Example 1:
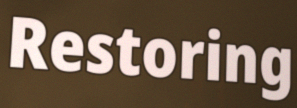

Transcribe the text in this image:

Restoring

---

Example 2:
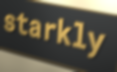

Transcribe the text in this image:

starkly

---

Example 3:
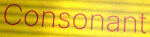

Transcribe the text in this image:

Consonant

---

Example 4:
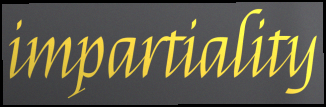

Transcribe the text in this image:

impartiality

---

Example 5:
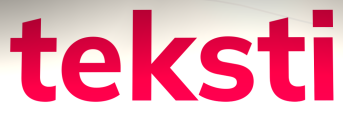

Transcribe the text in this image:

teksti